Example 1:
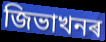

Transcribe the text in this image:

জিভাখনৰ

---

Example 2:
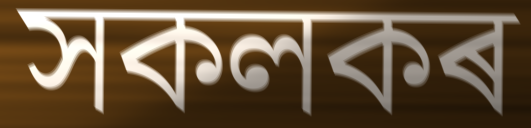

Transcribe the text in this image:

সকলকৰ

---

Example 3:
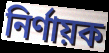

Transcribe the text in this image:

নিৰ্ণায়ক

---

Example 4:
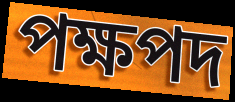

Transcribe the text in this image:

পক্ষপদ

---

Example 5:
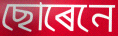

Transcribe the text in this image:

ছোৰেনে